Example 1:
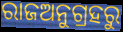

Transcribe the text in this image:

ରାଜଅନୁଗ୍ରହରୁ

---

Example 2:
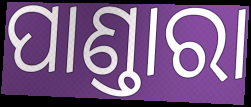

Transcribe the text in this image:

ପାଣ୍ଡାରା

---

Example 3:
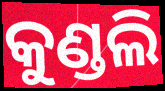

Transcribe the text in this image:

କୁଣ୍ଡଲି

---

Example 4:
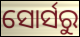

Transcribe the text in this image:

ସୋର୍ସରୁ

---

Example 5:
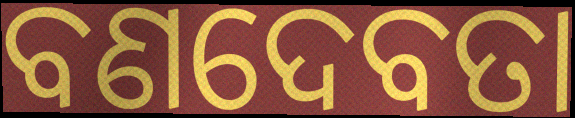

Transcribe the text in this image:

ବଣଦେବତା